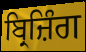
ਬ੍ਰਿਜ਼ਿੰਗ